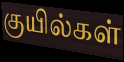
குயில்கள்